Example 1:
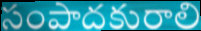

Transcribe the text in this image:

సంపాదకురాలి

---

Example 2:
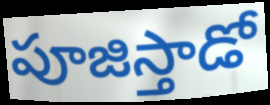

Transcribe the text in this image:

పూజిస్తాడో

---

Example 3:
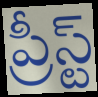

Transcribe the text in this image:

ప్రీస్ట్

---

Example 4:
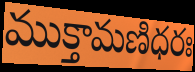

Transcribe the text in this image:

ముక్తామణిధరః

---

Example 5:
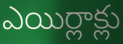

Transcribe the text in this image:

ఎయిర్లాక్లు